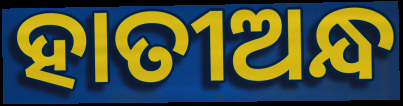
ହାତୀଅନ୍ଧ